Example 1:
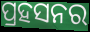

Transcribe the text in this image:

ପ୍ରହସନର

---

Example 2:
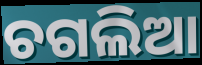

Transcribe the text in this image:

ଚଗଲିଆ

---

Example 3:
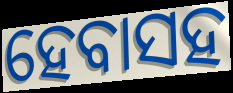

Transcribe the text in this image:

ହେବାସହ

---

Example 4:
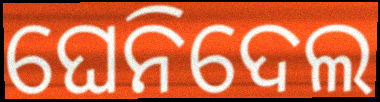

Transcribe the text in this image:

ଘେନିଦେଲ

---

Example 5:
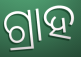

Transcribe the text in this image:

ଗ୍ରାହ